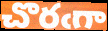
చొరఁగా